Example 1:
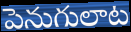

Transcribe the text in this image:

పెనుగులాట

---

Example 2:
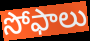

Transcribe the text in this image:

సోఫాలు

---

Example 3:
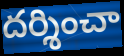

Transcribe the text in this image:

దర్శించా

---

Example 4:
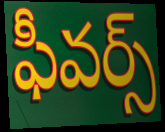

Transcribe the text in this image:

ఫీవర్స్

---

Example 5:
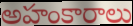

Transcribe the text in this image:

అహంకారాలు